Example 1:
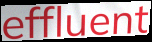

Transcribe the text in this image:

effluent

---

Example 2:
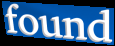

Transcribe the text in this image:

found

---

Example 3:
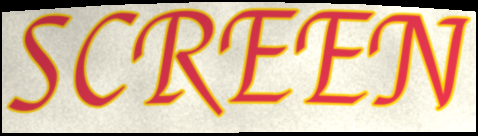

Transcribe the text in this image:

SCREEN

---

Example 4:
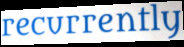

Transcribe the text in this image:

recurrently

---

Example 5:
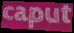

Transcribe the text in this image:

caput